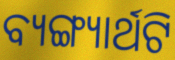
ବ୍ୟଙ୍ଗ୍ୟାର୍ଥଟି